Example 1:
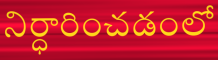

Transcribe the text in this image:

నిర్ధారించడంలో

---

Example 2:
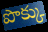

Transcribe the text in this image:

పొక్కు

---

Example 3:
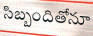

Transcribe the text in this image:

సిబ్బందితోనూ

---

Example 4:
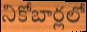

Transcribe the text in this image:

నికోబార్లలో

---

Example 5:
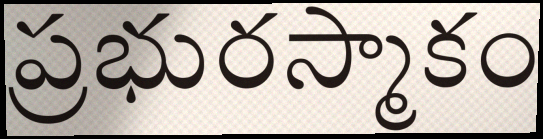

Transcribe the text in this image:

ప్రభురస్మాకం